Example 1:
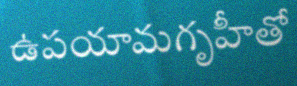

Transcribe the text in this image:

ఉపయామగృహీతో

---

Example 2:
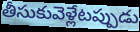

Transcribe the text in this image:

తీసుకువెళ్లేటప్పుడు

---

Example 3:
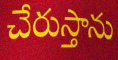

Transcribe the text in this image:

చేరుస్తాను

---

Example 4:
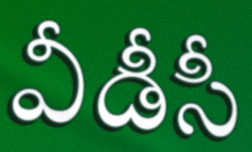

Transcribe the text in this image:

వీడీసీ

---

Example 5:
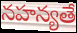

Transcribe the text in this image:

నహన్యతే